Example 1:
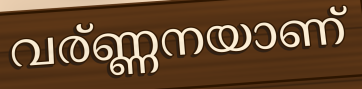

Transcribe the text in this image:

വര്ണ്ണനയാണ്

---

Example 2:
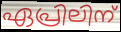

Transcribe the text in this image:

ഏപ്രിലിന്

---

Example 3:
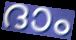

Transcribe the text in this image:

ദാം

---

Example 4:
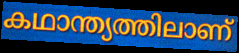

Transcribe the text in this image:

കഥാന്ത്യത്തിലാണ്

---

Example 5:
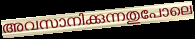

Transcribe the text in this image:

അവസാനിക്കുന്നതുപോലെ